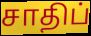
சாதிப்